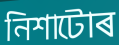
নিশাটোৰ